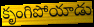
కృంగిపోయాడు